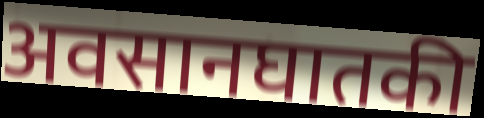
अवसानघातकी